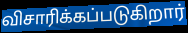
விசாரிக்கப்படுகிறார்